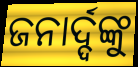
ଜନାର୍ଦ୍ଦଙ୍କୁ